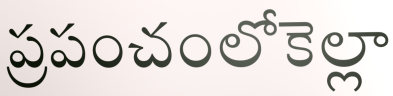
ప్రపంచంలోకెల్లా